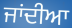
ਜਾਂਦੀਆ